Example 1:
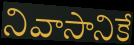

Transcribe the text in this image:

నివాసానికే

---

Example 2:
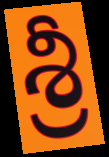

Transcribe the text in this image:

శ్రీ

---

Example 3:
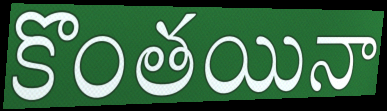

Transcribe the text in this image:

కొంతయినా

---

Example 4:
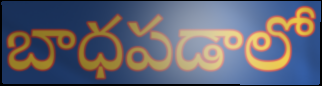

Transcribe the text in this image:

బాధపడాలో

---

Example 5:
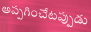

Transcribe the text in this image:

అప్పగించేటప్పుడు